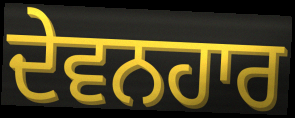
ਦੇਵਨਹਾਰ